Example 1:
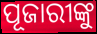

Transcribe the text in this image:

ପୂଜାରୀଙ୍କୁ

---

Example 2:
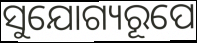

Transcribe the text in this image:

ସୁଯୋଗ୍ୟରୂପେ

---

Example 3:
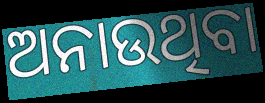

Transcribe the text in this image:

ଅନାଉଥିବା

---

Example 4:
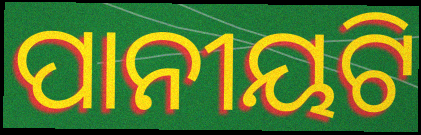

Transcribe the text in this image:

ପାନୀୟଟି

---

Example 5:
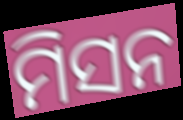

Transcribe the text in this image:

ମିସନ